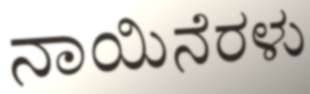
ನಾಯಿನೆರಳು